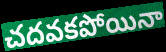
చదవకపోయినా